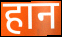
हान